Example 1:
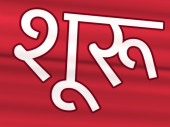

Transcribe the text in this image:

शूरू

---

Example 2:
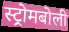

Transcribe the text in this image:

स्ट्रोमबोली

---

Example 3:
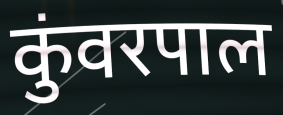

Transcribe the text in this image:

कुंवरपाल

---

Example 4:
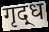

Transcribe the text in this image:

गृद्ध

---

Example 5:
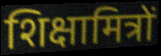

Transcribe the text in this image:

शिक्षामित्रों